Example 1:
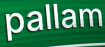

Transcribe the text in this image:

pallam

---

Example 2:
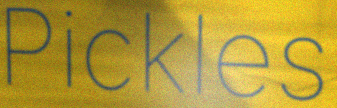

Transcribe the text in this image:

Pickles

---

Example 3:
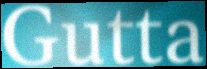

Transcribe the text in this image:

Gutta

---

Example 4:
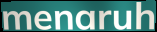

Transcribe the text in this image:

menaruh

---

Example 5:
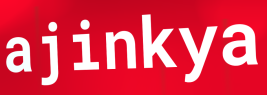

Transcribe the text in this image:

ajinkya